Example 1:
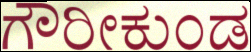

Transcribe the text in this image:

ಗೌರೀಕುಂಡ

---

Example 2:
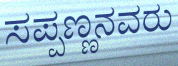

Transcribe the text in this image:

ಸಪ್ಪಣ್ಣನವರು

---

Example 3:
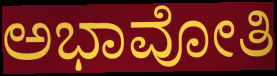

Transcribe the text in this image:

ಅಭಾವೋತಿ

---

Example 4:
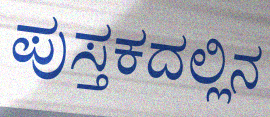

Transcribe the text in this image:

ಪುಸ್ತಕದಲ್ಲಿನ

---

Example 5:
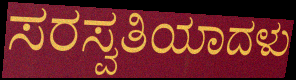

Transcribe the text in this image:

ಸರಸ್ವತಿಯಾದಳು